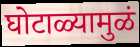
घोटाळ्यामुळं